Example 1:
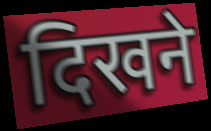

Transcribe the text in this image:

दिखने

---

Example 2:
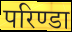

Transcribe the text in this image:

परिण्डा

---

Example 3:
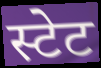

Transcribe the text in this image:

स्टेट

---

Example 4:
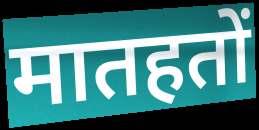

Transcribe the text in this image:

मातहतों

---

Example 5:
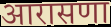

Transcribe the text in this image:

आरासणा